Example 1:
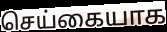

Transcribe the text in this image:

செய்கையாக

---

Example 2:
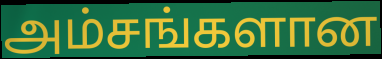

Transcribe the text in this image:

அம்சங்களான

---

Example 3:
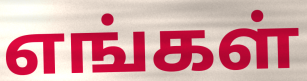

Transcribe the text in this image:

எங்கள்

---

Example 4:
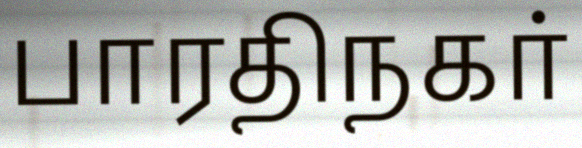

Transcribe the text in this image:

பாரதிநகர்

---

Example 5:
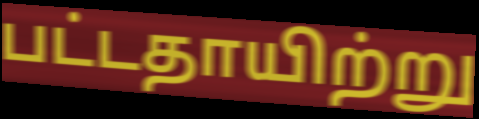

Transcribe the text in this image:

பட்டதாயிற்று